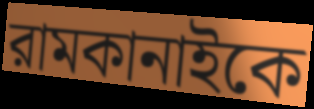
রামকানাইকে